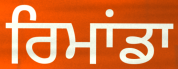
ਰਿਮਾਂਡਾ